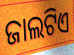
ଜାଲଟିଏ